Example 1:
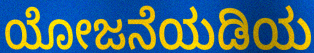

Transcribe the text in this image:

ಯೋಜನೆಯಡಿಯ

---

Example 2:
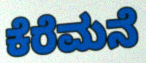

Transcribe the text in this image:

ಕೆರೆಮನೆ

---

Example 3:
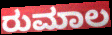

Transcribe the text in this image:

ರುಮಾಲ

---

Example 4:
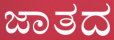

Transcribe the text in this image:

ಜಾತದ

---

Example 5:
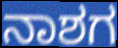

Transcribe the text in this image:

ನಾಶಗ